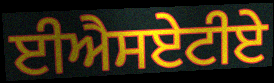
ਈਐਸਏਟੀਏ